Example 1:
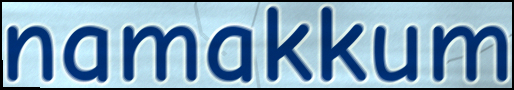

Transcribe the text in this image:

namakkum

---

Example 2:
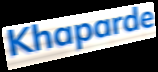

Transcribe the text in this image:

Khaparde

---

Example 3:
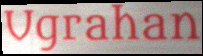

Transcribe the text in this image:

Ugrahan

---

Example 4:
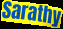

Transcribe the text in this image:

Sarathy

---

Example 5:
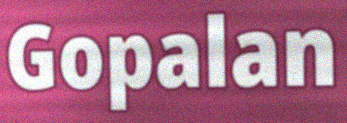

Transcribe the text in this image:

Gopalan